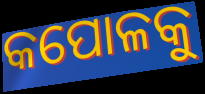
କପୋଳକୁ